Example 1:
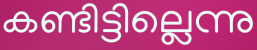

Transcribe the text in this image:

കണ്ടിട്ടില്ലെന്നു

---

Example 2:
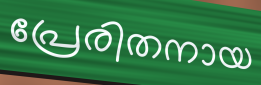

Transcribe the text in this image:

പ്രേരിതനായ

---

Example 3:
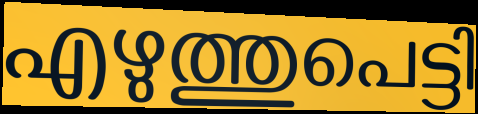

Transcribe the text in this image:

എഴുത്തുപെട്ടി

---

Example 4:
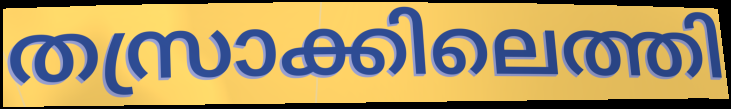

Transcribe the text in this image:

തസ്രാക്കിലെത്തി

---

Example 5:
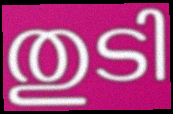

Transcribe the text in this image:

തുടി